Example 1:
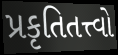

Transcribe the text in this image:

પ્રકૃતિતત્ત્વો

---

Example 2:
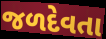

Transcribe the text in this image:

જળદેવતા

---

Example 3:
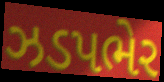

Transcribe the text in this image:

ઝડપભેર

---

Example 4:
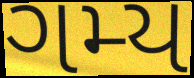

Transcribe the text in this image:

ગમ્ય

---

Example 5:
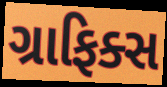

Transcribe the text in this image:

ગ્રાફિક્સ